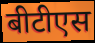
बीटीएस